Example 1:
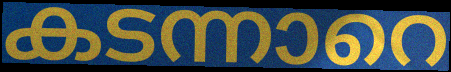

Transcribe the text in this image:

കടന്നാറെ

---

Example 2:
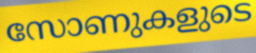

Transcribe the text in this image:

സോണുകളുടെ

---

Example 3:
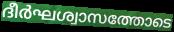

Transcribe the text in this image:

ദീർഘശ്വാസത്തോടെ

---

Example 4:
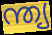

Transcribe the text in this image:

ന്ത്യ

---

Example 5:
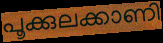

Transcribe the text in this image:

പൂക്കുലക്കാണി